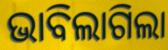
ଭାବିଲାଗିଲା